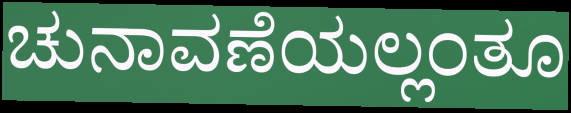
ಚುನಾವಣೆಯಲ್ಲಂತೂ